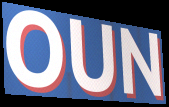
OUN